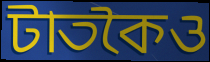
টাতকৈও